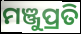
ମଞ୍ଜୁପ୍ରତି